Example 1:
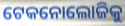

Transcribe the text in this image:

ଟେକନୋଲୋଜିକୁ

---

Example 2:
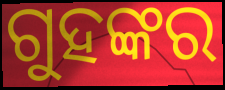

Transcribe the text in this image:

ଗୁହଙ୍କର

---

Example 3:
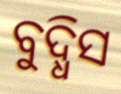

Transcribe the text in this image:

ବୁଦ୍ଧିସ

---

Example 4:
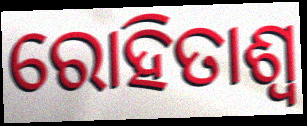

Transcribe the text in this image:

ରୋହିତାଶ୍ୱ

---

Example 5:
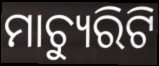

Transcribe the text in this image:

ମାଚ୍ୟୁରିଟି